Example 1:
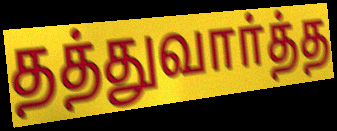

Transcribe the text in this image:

தத்துவார்த்த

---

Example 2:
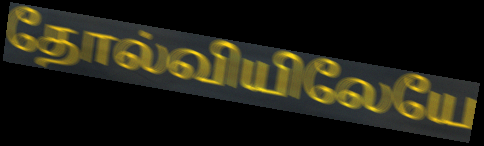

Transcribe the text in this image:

தோல்வியிலேயே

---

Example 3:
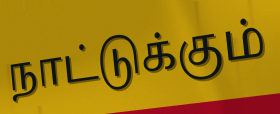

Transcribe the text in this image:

நாட்டுக்கும்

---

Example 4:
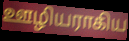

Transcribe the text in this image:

ஊழியராகிய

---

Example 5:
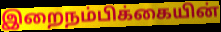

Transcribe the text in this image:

இறைநம்பிக்கையின்